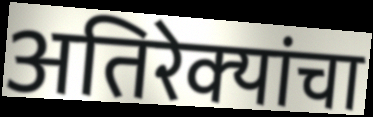
अतिरेक्यांचा